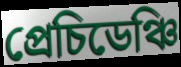
প্ৰেচিডেঞ্চি